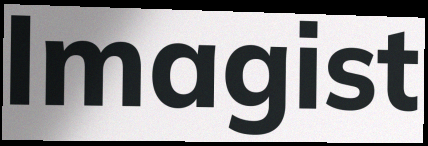
Imagist